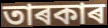
তাৰকাৰ